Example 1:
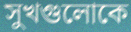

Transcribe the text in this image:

সুখগুলোকে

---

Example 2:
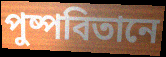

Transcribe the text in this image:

পুষ্পবিতানে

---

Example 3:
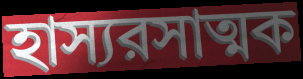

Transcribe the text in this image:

হাস্যরসাত্মক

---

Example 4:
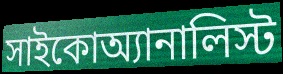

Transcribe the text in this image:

সাইকোঅ্যানালিস্ট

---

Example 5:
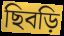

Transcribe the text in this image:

ছিবড়ি